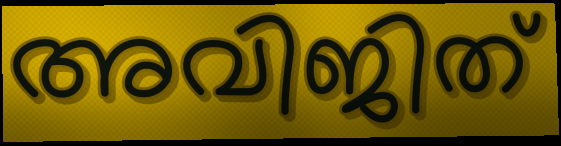
അവിജിത്